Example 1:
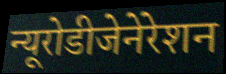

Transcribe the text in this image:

न्यूरोडीजेनेरेशन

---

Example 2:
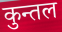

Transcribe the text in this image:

कुन्तल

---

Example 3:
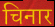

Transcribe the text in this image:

चिनार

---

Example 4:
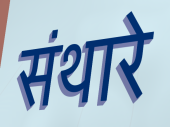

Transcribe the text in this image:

संथारे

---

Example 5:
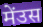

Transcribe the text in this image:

मेंउस